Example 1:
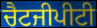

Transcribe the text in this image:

ਚੈਟਜੀਪੀਟੀ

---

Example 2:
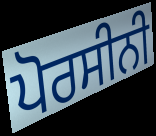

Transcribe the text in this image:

ਪੋਰਸੀਨੀ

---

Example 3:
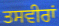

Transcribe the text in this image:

ਤਸਵੀਰਾਂ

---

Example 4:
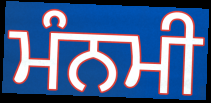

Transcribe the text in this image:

ਮੰਨਮੀ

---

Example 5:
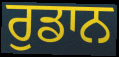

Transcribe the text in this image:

ਰੁਡਾਨ